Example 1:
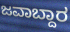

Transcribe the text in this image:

ಜವಾಬ್ದಾರ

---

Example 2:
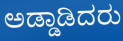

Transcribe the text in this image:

ಅಡ್ಡಾಡಿದರು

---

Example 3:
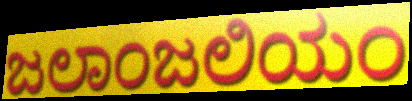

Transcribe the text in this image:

ಜಲಾಂಜಲಿಯಂ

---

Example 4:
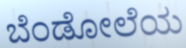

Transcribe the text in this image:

ಬೆಂಡೋಲೆಯ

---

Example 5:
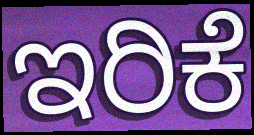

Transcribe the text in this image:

ಇರಿಕೆ